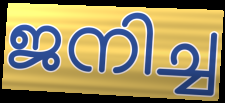
ജനിച്ച